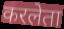
करलेता